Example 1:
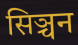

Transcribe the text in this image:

सिञ्चन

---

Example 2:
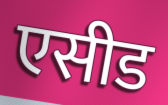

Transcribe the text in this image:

एसीड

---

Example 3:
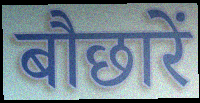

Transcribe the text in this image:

बौछारें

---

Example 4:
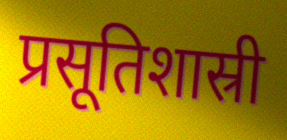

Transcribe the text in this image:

प्रसूतिशास्री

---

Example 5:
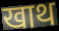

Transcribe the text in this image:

खाथ